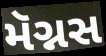
મૅગ્નસ